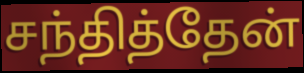
சந்தித்தேன்